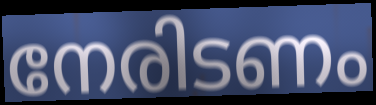
നേരിടണം